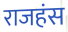
राजहंस